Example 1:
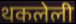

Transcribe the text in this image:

थकलेली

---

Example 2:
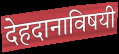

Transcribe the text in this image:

देहदानाविषयी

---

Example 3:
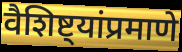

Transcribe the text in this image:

वैशिष्ट्यांप्रमाणे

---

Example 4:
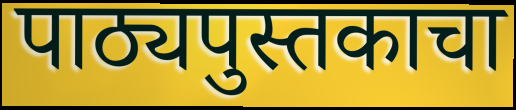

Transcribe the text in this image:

पाठ्यपुस्तकाचा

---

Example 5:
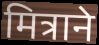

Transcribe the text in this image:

मित्राने